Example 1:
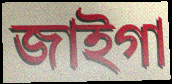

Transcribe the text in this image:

জাইগা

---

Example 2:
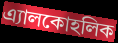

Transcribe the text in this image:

এ্যালকোহলিক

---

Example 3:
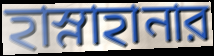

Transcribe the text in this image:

হাস্নাহানার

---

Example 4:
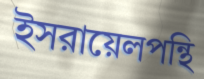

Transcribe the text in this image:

ইসরায়েলপন্থি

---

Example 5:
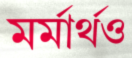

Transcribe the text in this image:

মর্মার্থও